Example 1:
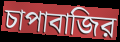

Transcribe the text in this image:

চাপাবাজির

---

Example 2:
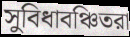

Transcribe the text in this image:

সুবিধাবঞ্চিতরা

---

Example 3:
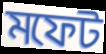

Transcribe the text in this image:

মফেট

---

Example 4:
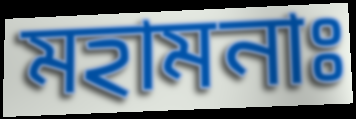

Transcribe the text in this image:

মহামনাঃ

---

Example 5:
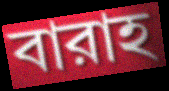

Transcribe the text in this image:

বারাহ